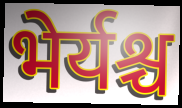
भेर्यश्च